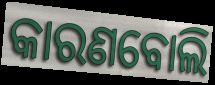
କାରଣବୋଲି